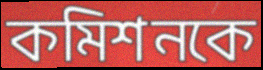
কমিশনকে